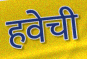
हवेची